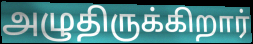
அழுதிருக்கிறார்